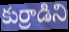
కుర్రాడిని